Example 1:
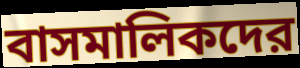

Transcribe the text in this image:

বাসমালিকদের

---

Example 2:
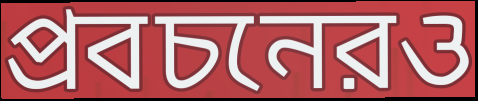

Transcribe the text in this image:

প্রবচনেরও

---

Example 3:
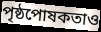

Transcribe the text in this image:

পৃষ্ঠপোষকতাও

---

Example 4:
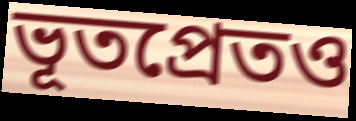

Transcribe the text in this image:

ভূতপ্রেতও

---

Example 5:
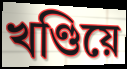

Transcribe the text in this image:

খণ্ডিয়ে